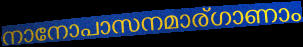
നാനോപാസനമാര്ഗാണാം